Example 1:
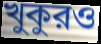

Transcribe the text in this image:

খুকুরও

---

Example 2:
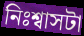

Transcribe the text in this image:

নিঃশ্বাসটা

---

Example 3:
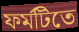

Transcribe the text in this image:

ফর্মটিতে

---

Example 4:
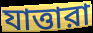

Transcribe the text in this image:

যাত্তারা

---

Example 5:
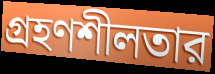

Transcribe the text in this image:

গ্রহণশীলতার